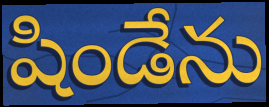
షిండేను